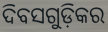
ଦିବସଗୁଡ଼ିକର